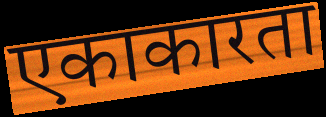
एकाकारता